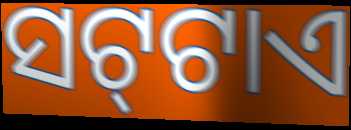
ସଟ୍‍ଟାଏ